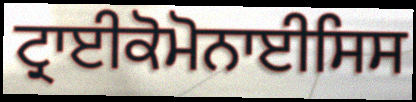
ਟ੍ਰਾਈਕੋਮੋਨਾਈਸਿਸ